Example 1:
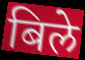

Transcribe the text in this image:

बिले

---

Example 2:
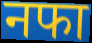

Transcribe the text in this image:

नफा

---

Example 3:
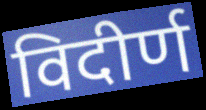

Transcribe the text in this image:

विदीर्ण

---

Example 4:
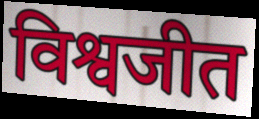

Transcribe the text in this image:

विश्वजीत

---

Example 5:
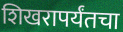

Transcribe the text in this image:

शिखरापर्यंतचा